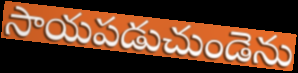
సాయపడుచుండెను